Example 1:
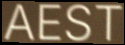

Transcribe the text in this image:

AEST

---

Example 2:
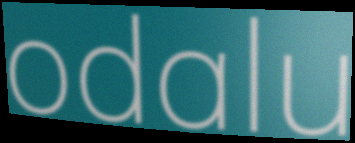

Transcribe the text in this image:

odalu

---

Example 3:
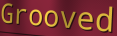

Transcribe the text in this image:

Grooved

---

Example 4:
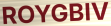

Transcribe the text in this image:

ROYGBIV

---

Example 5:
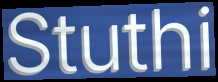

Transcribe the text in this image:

Stuthi